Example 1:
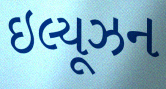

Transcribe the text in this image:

ઇલ્યૂઝન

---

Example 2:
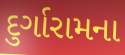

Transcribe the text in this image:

દુર્ગારામના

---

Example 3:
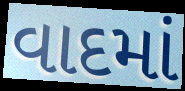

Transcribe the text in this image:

વાદમાં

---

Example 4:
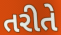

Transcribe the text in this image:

તરીતે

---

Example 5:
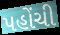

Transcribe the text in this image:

પહોંચી